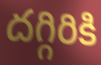
దగ్గిరికి